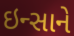
ઇન્સાને